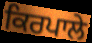
ਕਿਰਪਾਲੇ